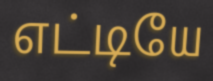
எட்டியே